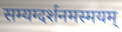
सम्यग्दर्शनमस्मयम्